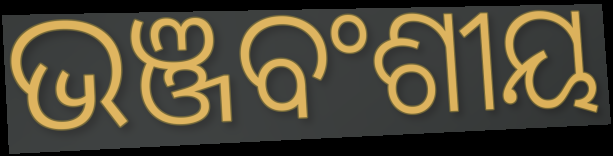
ଭଞ୍ଜବଂଶୀୟ